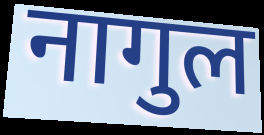
नागुल